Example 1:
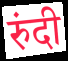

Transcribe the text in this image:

रुंदी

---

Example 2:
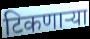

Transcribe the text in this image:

टिकणाऱ्या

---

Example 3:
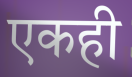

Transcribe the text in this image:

एकही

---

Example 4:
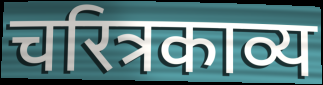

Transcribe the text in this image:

चरित्रकाव्य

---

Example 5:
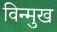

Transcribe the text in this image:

विन्मुख